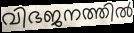
വിഭജനത്തിൽ